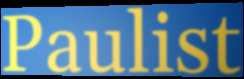
Paulist